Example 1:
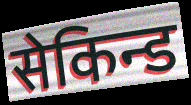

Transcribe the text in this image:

सेकिन्ड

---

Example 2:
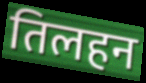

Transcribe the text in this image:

तिलहन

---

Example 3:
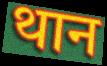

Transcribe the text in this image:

थान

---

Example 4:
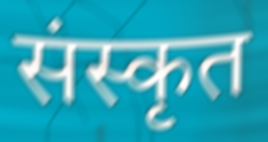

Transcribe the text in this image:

संस्‍कृत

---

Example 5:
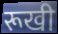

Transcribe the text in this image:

रूखी